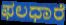
ಫಲಧಾರೆ